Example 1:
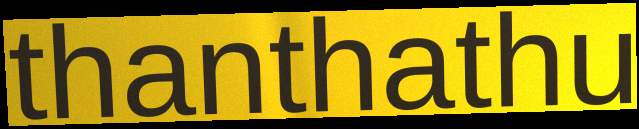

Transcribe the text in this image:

thanthathu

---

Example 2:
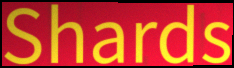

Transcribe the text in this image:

Shards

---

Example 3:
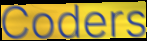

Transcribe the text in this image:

Coders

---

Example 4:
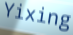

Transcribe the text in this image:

Yixing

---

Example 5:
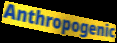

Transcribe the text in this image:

Anthropogenic